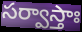
సర్వాస్తాః